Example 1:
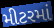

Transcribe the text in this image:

મીટરમાં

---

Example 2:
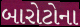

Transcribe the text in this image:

બારોટોના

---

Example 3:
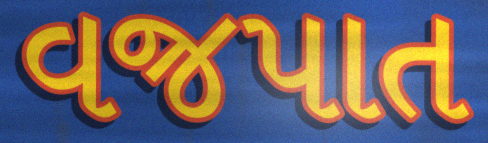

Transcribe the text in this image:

વજ્રપાત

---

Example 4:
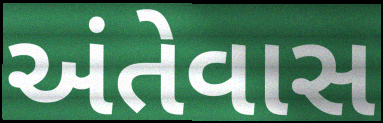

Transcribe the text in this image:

અંતેવાસ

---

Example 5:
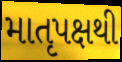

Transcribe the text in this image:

માતૃપક્ષથી